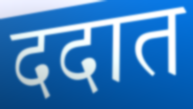
ददात